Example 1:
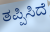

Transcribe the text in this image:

ತಪ್ಪಿಸಿದೆ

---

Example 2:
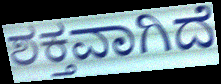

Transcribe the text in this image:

ಶಕ್ತವಾಗಿದೆ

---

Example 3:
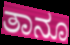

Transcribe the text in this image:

ತಾನೂ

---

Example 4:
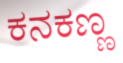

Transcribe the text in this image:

ಕನಕಣ್ಣ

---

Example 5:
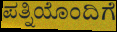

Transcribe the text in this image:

ಪತ್ನಿಯೊಂದಿಗೆ